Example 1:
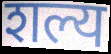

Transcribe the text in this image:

शल्य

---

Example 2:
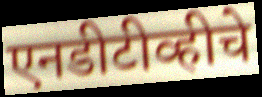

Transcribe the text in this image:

एनडीटीव्हीचे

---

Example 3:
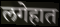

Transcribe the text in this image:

लगेहात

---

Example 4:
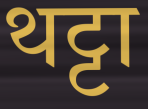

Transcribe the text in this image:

थट्टा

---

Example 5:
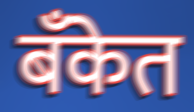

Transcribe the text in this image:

बॅंकेत